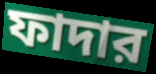
ফাদার